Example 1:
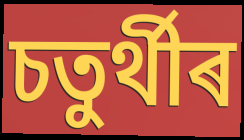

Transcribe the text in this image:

চতুৰ্থীৰ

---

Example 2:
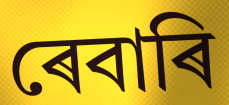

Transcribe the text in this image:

ৰেবাৰি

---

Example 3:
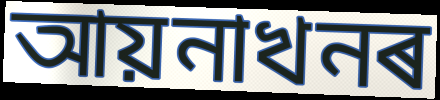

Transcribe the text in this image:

আয়নাখনৰ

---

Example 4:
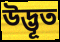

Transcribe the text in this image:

উদ্ভূত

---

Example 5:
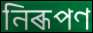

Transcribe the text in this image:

নিৰূপণ